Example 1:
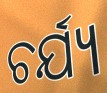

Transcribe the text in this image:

ଚର୍ଯ୍ୟ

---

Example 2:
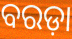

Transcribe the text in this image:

ବରଡ଼ା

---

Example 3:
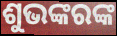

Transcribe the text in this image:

ଶୁଭଙ୍କରଙ୍କ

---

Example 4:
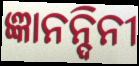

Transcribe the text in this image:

ଜ୍ଞାନନ୍ଦିନୀ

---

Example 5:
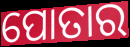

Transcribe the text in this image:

ପୋତାର